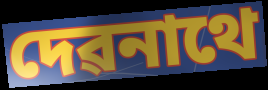
দেৱনাথে